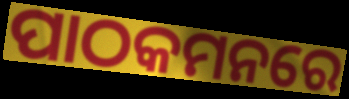
ପାଠକମନରେ